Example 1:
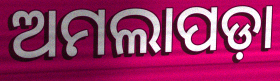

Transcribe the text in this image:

ଅମଲାପଡ଼ା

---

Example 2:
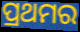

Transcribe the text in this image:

ପ୍ରଥମର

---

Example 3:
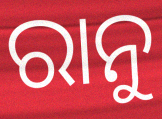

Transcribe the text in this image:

ରାନୁ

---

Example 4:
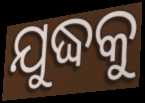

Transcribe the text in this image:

ଯୁଦ୍ଧକୁ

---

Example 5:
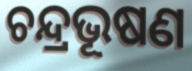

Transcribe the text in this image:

ଚନ୍ଦ୍ରଭୂଷଣ